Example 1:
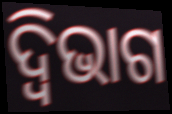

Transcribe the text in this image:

ଦ୍ୱିଭାଗ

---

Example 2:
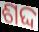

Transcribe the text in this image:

ଶଦ୍ଦ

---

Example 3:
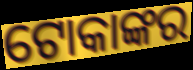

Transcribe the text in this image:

ଟୋକାଙ୍କର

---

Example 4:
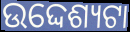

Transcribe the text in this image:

ଉଦ୍ଦେଶ୍ୟଟା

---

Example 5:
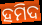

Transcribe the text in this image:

ହମିଦ